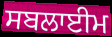
ਸਬਲਾਈਮ